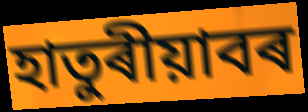
হাতুৰীয়াবৰ